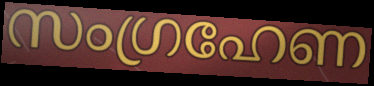
സംഗ്രഹേണ